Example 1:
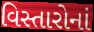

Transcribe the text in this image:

વિસ્તારોનાં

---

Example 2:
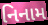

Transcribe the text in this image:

નિનામ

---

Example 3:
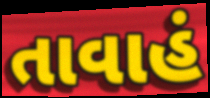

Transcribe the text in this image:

તાવાહં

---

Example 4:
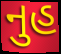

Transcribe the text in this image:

નુહ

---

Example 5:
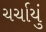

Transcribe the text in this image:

ચર્ચાયું